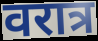
वरात्र